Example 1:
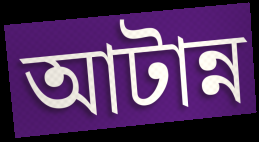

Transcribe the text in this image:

আটান্ন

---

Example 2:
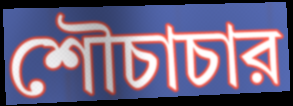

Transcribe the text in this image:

শৌচাচার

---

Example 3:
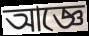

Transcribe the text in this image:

আজ্ঞে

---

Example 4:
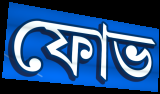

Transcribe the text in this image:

ফোভ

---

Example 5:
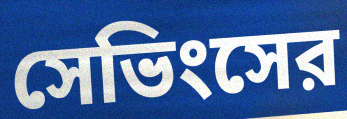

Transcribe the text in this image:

সেভিংসের